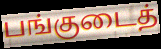
பங்குடைத்